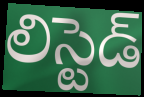
లిస్టెడ్